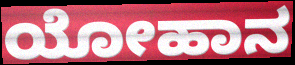
ಯೋಹಾನ